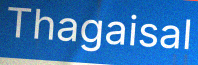
Thagaisal